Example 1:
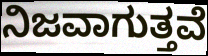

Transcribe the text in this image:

ನಿಜವಾಗುತ್ತವೆ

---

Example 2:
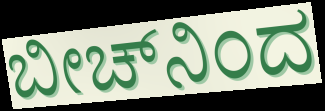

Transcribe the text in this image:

ಬೀಚ್‌ನಿಂದ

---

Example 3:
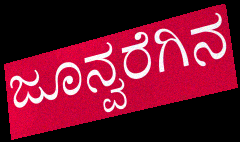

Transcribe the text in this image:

ಜೂನ್ವರೆಗಿನ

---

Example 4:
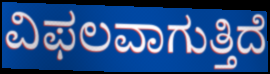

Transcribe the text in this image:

ವಿಫಲವಾಗುತ್ತಿದೆ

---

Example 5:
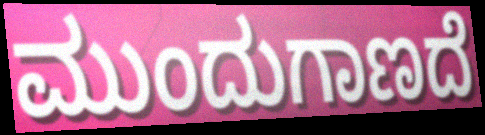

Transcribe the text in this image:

ಮುಂದುಗಾಣದೆ